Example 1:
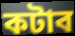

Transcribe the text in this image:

কটাব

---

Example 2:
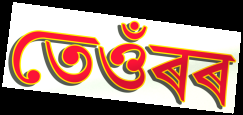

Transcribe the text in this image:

তেওঁৰৰ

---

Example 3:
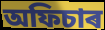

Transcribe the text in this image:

অফিচাৰ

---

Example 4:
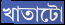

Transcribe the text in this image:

খাতাটো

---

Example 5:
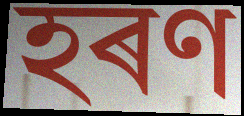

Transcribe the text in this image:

হৰণ